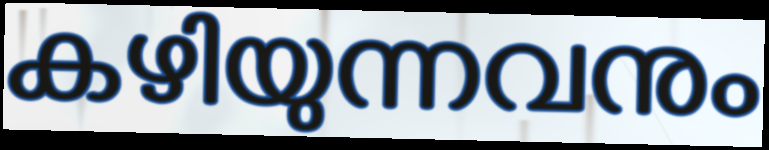
കഴിയുന്നവനും